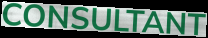
CONSULTANT